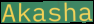
Akasha